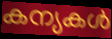
കന്യകൾ